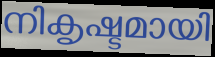
നികൃഷ്ടമായി